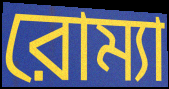
রোম্যা